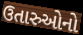
ઉતારુઓનો